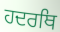
ਹਦਰਥਿ